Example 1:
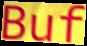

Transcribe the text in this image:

Buf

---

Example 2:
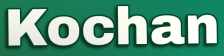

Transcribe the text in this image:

Kochan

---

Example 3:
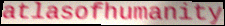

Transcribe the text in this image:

atlasofhumanity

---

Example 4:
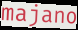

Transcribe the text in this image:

majano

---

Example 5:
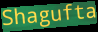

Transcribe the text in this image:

Shagufta